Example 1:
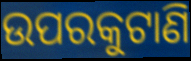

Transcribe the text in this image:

ଉପରକୁଟାଣି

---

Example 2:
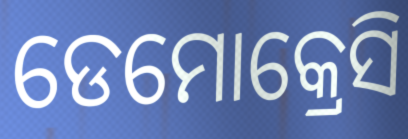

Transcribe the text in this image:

ଡେମୋକ୍ରେସି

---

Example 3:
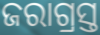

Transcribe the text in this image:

ଜରାଗ୍ରସ୍ତ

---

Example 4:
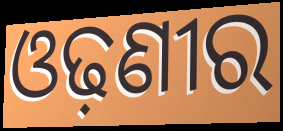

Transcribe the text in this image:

ଓଢ଼ଣୀର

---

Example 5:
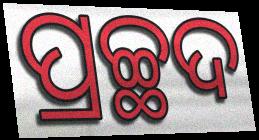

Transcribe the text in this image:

ପ୍ରଚ୍ଛଦ